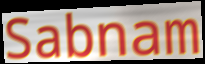
Sabnam